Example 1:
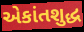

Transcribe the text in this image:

એકાંતશુદ્ધ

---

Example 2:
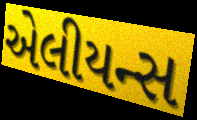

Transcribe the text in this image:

એલીયન્સ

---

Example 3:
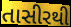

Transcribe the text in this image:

તાસીરથી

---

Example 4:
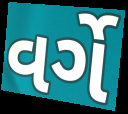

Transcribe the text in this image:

વર્ગે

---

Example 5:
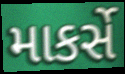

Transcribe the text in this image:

માકર્સે